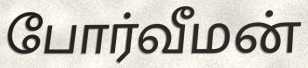
போர்வீமன்